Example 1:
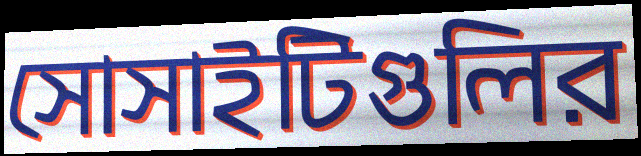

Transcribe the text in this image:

সোসাইটিগুলির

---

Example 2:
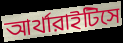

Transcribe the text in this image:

আর্থারাইটিসে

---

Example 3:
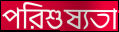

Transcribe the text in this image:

পরিশুষ্যতা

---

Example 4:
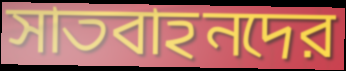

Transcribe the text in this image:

সাতবাহনদের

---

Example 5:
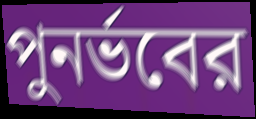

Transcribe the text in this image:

পুনর্ভবের